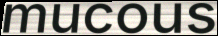
mucous